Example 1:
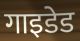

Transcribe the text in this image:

गाइडेड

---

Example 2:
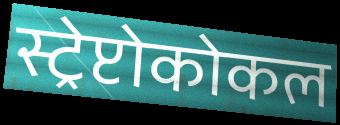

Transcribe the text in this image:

स्ट्रेप्टोकोकल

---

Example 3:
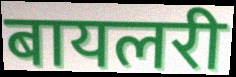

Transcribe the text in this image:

बायलरी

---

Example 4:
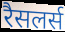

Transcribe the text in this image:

रैसलर्स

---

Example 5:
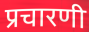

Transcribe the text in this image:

प्रचारणी